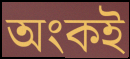
অংকই